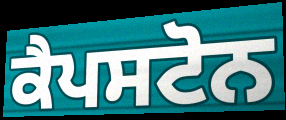
ਕੈਪਸਟੋਨ